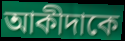
আকীদাকে